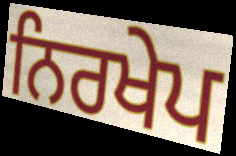
ਨਿਰਖੇਪ